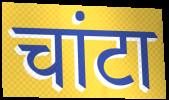
चांटा